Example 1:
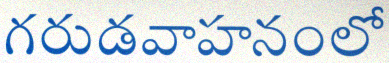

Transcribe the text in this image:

గరుడవాహనంలో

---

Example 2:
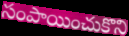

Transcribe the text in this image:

సంపాయించుకొని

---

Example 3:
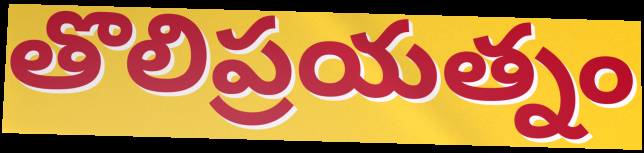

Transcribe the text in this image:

తొలిప్రయత్నం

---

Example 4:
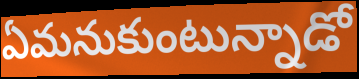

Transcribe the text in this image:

ఏమనుకుంటున్నాడో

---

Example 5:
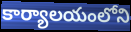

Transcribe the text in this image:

కార్యాలయంలోని